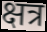
क्षत्र